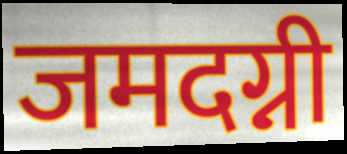
जमदग्नी